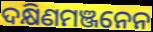
ଦକ୍ଷିଣମଞ୍ଜନେନ